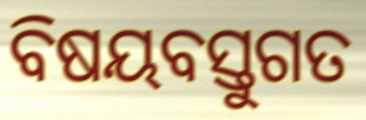
ବିଷୟବସ୍ତୁଗତ